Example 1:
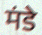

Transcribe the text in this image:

मंडे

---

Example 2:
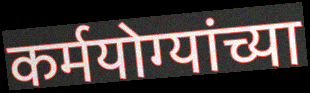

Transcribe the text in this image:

कर्मयोग्यांच्या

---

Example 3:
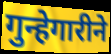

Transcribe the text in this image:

गुन्हेगारीने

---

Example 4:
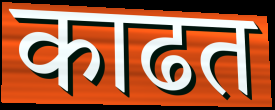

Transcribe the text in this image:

काढत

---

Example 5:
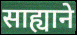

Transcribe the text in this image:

साह्याने